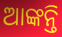
ଆଙ୍କନ୍ତି